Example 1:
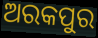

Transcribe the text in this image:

ଅରକପୁର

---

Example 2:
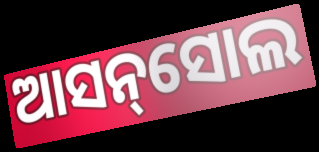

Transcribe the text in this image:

ଆସନ୍‌ସୋଲ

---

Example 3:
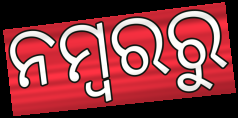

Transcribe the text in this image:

ନମ୍ୱରରୁ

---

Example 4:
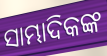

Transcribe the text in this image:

ସାମ୍ଭାଦିକଙ୍କ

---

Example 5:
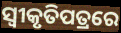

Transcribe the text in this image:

ସ୍ୱୀକୃତିପତ୍ରରେ